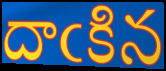
దాఁకిన